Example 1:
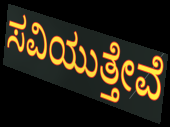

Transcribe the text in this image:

ಸವಿಯುತ್ತೇವೆ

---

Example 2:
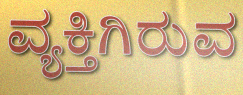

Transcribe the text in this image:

ವ್ಯಕ್ತಿಗಿರುವ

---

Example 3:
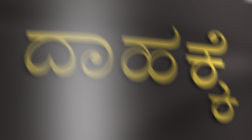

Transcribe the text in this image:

ದಾಹಕ್ಕೆ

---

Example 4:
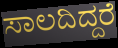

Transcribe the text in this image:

ಸಾಲದಿದ್ದರೆ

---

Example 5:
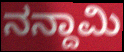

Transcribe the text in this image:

ನನ್ದಾಮಿ